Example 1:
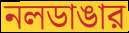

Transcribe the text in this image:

নলডাঙার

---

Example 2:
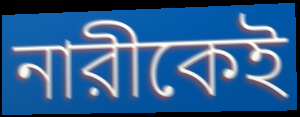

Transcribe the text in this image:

নারীকেই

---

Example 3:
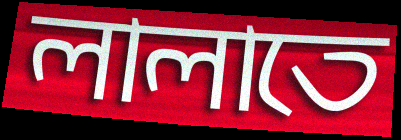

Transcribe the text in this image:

লালাতে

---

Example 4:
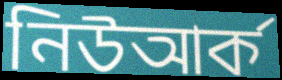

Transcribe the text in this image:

নিউআর্ক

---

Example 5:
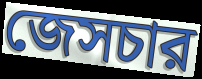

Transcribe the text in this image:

জেসচার